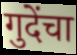
गुदेंचा